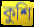
কুশি